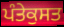
ਪੰਤੇਕੁਸਤ